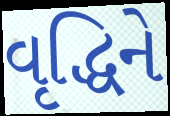
વૃદ્ધિને